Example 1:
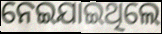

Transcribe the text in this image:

ନେଇଯାଇଥିଲେ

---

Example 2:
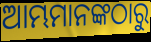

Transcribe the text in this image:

ଆମ୍ଭମାନଙ୍କଠାରୁ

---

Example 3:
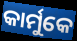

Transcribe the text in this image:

କାର୍ମୁକେ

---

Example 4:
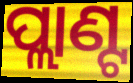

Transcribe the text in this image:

ପ୍ଲାଣ୍ଟ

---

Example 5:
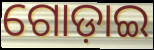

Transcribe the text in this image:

ଗୋଡ଼ାଇ